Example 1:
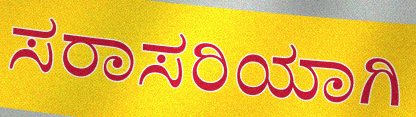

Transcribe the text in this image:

ಸರಾಸರಿಯಾಗಿ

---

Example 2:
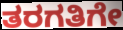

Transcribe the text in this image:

ತರಗತಿಗೇ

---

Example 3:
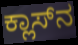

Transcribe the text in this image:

ಕ್ಲಾಸ್‌ನ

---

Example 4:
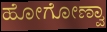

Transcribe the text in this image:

ಹೋಗೋಣ್ವಾ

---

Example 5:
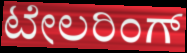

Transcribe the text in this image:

ಟೇಲರಿಂಗ್